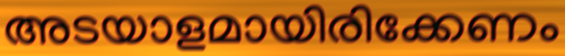
അടയാളമായിരിക്കേണം